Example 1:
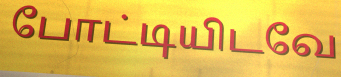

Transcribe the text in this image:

போட்டியிடவே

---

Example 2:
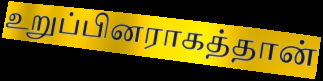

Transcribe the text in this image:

உறுப்பினராகத்தான்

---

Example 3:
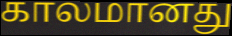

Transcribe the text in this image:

காலமானது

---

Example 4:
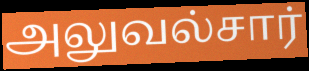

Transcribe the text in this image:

அலுவல்சார்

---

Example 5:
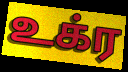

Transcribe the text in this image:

உக்ர